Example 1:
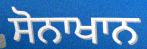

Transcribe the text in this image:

ਸੋਨਾਖਾਨ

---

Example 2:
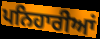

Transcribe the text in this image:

ਪਨਿਹਾਰੀਆਂ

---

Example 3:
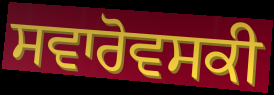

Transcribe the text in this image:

ਸਵਾਰੋਵਸਕੀ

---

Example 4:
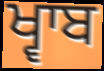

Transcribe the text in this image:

ਖ੍ਵਾਬ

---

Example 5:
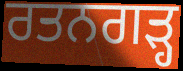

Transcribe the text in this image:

ਰਤਨਗੜ੍ਹ